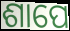
ଶାପେ